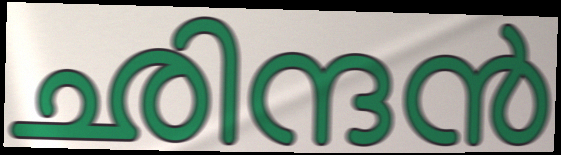
ഛിന്ദൻ